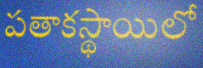
పతాకస్థాయిలో